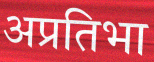
अप्रतिभा